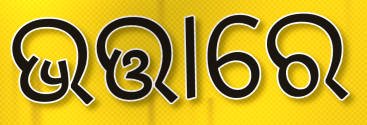
ଭତ୍ତାରେ